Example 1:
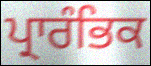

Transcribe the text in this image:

ਪ੍ਰਾਰੰਭਿਕ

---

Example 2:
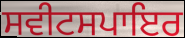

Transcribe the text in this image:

ਸਵੀਟਸਪਾਇਰ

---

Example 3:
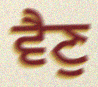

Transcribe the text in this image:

ਵੈਣੁ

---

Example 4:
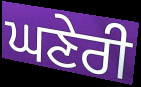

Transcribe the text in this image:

ਘਣੇਰੀ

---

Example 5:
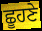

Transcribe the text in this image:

ਛੂਹਣੇ